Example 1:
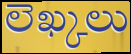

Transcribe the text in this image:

లెఖ్కలు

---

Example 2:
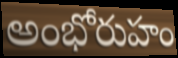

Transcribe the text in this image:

అంభోరుహం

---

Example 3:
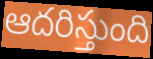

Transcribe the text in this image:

ఆదరిస్తుంది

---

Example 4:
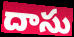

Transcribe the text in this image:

దాసు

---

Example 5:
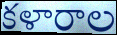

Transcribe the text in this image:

కళారాల